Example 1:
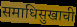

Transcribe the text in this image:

समाधिसुखाची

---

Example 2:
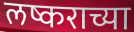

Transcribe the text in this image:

लष्कराच्या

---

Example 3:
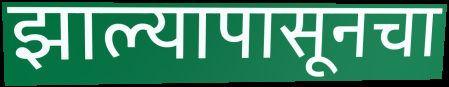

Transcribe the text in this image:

झाल्यापासूनचा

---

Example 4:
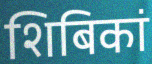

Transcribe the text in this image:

शिबिकां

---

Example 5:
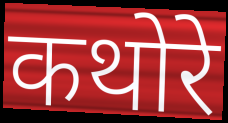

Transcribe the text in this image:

कथोरे